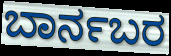
ಬಾರ್ನಬರ